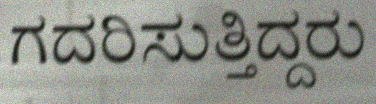
ಗದರಿಸುತ್ತಿದ್ದರು